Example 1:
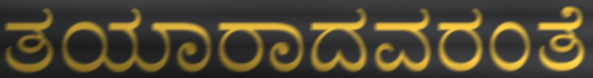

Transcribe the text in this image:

ತಯಾರಾದವರಂತೆ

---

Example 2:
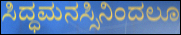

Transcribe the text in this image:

ಸಿದ್ಧಮನಸ್ಸಿನಿಂದಲೂ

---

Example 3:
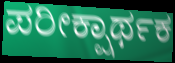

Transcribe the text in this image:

ಪರೀಕ್ಷಾರ್ಥಕ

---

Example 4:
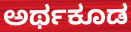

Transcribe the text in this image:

ಅರ್ಥಕೂಡ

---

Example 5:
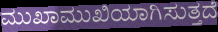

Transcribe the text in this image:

ಮುಖಾಮುಖಿಯಾಗಿಸುತ್ತದೆ